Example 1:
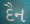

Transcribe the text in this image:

દૈન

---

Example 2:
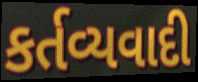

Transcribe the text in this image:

કર્તવ્યવાદી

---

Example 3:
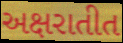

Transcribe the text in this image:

અક્ષરાતીત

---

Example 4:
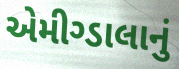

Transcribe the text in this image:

એમીગ્ડાલાનું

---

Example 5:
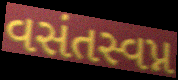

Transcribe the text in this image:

વસંતસ્વપ્ન